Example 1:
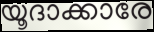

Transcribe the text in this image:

യൂദാക്കാരേ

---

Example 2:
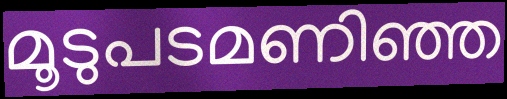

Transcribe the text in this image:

മൂടുപടമണിഞ്ഞ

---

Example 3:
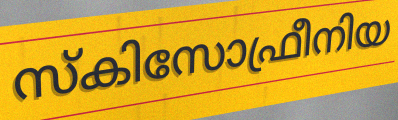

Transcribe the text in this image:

സ്കിസോഫ്രീനിയ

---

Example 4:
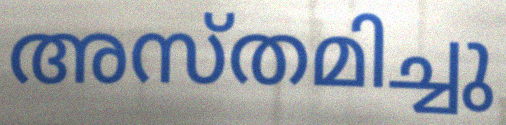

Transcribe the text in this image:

അസ്തമിച്ചു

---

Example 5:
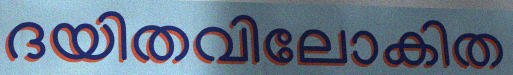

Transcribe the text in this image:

ദയിതവിലോകിത